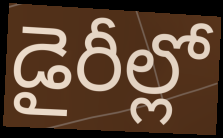
డైరీల్లో